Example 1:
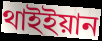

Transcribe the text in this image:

থাইইয়ান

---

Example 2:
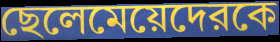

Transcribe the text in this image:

ছেলেমেয়েদেরকে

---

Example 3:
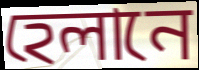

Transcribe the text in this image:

হেলানে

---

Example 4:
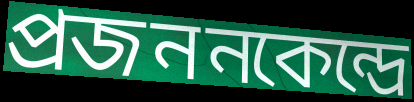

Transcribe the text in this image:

প্রজননকেন্দ্রে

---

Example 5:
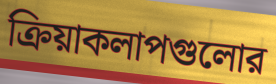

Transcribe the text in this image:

ক্রিয়াকলাপগুলোর